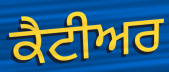
ਕੈਟੀਅਰ